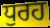
ਧੁਰਹ